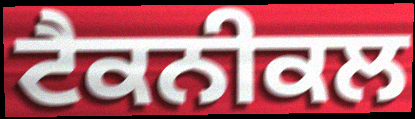
ਟੈਕਨੀਕਲ